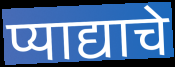
प्याद्याचे